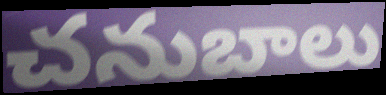
చనుబాలు